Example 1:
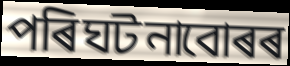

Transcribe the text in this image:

পৰিঘটনাবোৰৰ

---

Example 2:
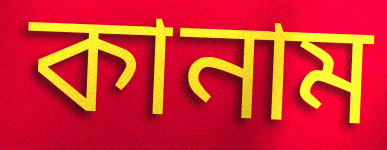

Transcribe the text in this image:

কানাম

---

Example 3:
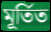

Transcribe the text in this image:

মূৰ্তিত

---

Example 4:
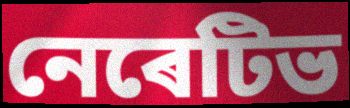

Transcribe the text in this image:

নেৰেটিভ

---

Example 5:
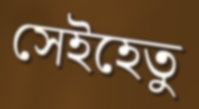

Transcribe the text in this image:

সেইহেতু